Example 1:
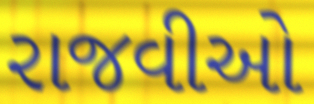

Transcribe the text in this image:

રાજવીઓ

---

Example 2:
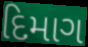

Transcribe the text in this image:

દિમાગ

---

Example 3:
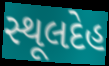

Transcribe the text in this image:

સ્થૂલદેહ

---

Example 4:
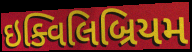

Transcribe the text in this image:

ઇક્વિલિબ્રિયમ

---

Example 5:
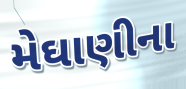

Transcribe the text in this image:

મેઘાણીના